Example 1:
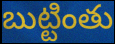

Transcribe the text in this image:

బుట్టింతు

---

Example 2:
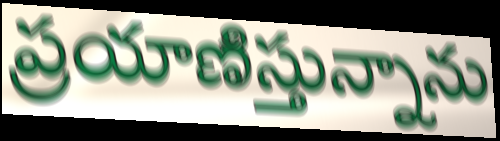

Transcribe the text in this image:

ప్రయాణిస్తున్నాను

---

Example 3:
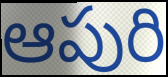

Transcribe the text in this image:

ఆపురి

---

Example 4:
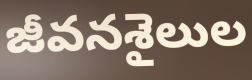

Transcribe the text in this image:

జీవనశైలుల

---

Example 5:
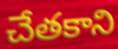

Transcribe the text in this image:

చేతకాని